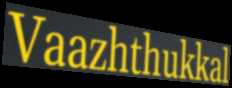
Vaazhthukkal